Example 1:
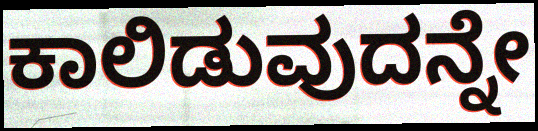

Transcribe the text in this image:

ಕಾಲಿಡುವುದನ್ನೇ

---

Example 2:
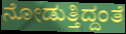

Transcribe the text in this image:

ನೋಡುತ್ತಿದ್ದಂತೆ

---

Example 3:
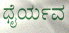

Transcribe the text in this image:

ಧೈರ್ಯವ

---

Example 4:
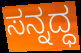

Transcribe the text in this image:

ಸನ್ನದ್ಧ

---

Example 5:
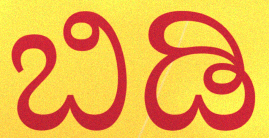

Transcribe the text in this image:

ಬಿಡಿ